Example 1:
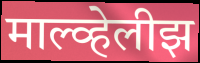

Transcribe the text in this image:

माल्व्हेलीझ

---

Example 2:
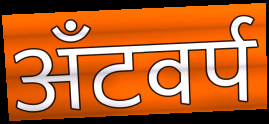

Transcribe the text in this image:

अँटवर्प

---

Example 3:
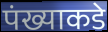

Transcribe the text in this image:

पंख्याकडे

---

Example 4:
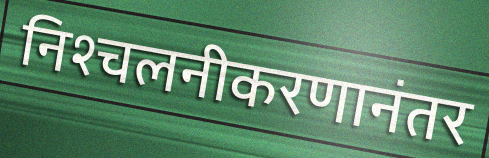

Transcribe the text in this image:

निश्चलनीकरणानंतर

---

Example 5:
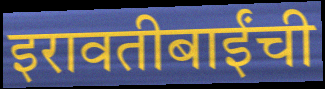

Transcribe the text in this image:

इरावतीबाईंची